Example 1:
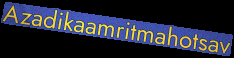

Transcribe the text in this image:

Azadikaamritmahotsav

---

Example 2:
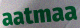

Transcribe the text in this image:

aatmaa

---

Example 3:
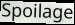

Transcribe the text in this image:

Spoilage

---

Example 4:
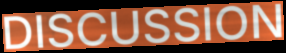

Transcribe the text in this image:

DISCUSSION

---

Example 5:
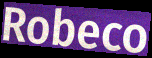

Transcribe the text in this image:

Robeco